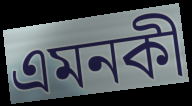
এমনকী